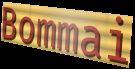
Bommai